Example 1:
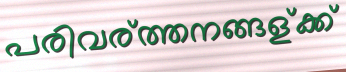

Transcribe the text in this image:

പരിവര്ത്തനങ്ങള്ക്ക്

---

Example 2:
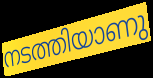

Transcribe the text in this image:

നടത്തിയാണു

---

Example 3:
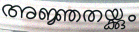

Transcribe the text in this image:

അജ്ഞതയ്ക്കും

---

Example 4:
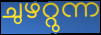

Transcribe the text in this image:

ചുഴറ്റുന്ന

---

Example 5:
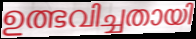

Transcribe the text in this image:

ഉത്ഭവിച്ചതായി